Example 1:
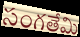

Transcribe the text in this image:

సంగతేమి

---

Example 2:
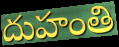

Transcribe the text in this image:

దుహంతి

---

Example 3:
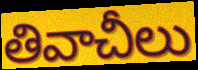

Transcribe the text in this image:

తివాచీలు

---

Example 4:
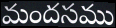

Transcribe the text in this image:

మందసము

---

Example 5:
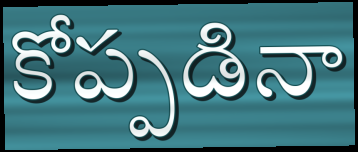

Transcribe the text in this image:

కోప్పడినా